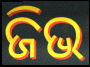
ଜିଭ